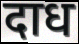
दाध